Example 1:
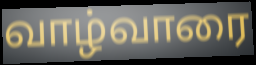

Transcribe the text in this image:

வாழ்வாரை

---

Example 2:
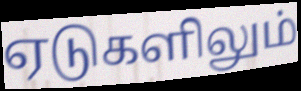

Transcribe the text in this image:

ஏடுகளிலும்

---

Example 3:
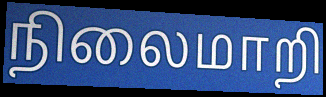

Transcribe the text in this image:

நிலைமாறி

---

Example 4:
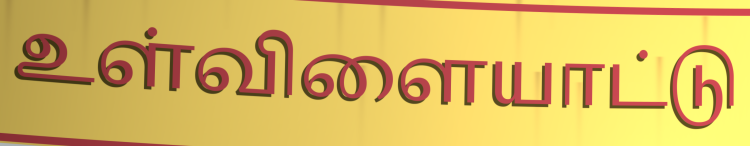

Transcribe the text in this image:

உள்விளையாட்டு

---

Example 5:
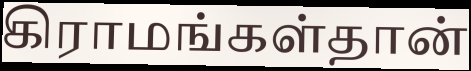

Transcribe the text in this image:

கிராமங்கள்தான்